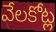
వేలకోట్ల